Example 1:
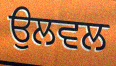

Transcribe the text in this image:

ਉਲਵਲ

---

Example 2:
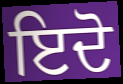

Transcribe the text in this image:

ਇਦੋ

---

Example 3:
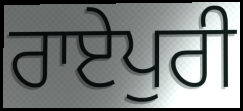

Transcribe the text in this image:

ਰਾਏਪੁਰੀ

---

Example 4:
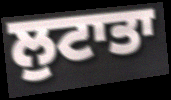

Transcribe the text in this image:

ਲੁਟਾਤਾ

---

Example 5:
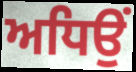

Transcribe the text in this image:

ਅਧਿਉਂ